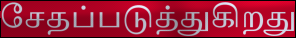
சேதப்படுத்துகிறது